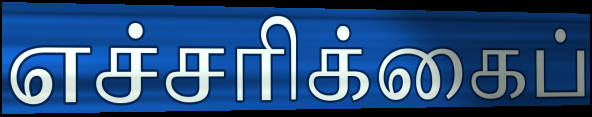
எச்சரிக்கைப்